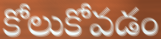
కోలుకోవడం